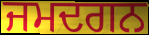
ਜਮਦਗਨ